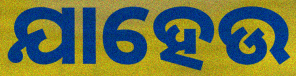
ଯାହେଉ